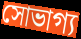
সোভাগ্য